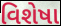
વિશેષા